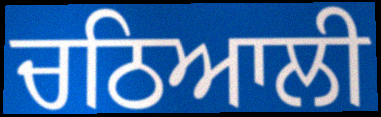
ਚਠਿਆਲੀ